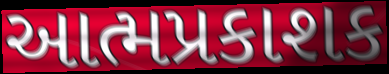
આત્મપ્રકાશક